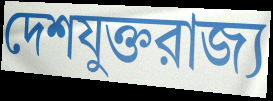
দেশযুক্তরাজ্য